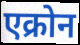
एक्रोन